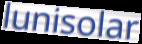
lunisolar